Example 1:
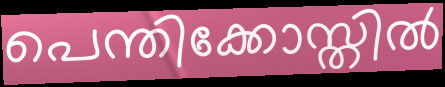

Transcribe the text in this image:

പെന്തിക്കോസ്തിൽ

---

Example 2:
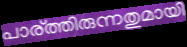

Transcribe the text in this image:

പാര്ത്തിരുന്നതുമായി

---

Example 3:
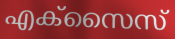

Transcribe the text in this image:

എക്‌സൈസ്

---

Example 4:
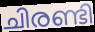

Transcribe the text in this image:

ചിരണ്ടി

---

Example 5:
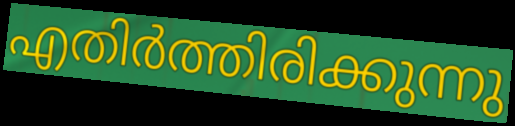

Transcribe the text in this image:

എതിർത്തിരിക്കുന്നു